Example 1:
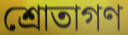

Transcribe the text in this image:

শ্রোতাগণ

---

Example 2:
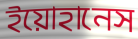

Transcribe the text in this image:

ইয়োহানেস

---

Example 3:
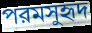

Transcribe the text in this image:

পরমসুহৃদ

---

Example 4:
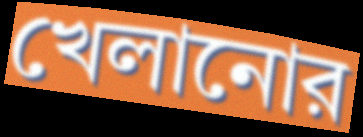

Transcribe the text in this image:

খেলানোর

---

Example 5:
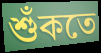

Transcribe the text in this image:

শুঁকতে